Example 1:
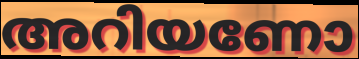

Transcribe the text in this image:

അറിയണോ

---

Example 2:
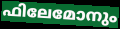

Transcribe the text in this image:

ഫിലേമോനും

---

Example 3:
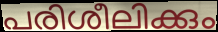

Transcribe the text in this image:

പരിശീലിക്കും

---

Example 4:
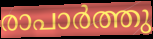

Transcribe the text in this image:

രാപാർത്തു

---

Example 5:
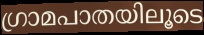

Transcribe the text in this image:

ഗ്രാമപാതയിലൂടെ